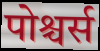
पोश्चर्स